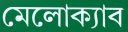
মেলোক্যাব